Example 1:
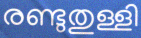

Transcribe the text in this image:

രണ്ടുതുള്ളി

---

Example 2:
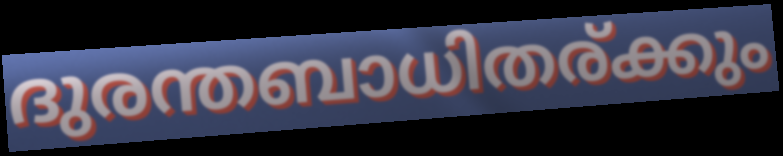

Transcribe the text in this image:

ദുരന്തബാധിതര്ക്കും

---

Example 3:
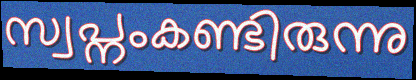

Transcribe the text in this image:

സ്വപ്നംകണ്ടിരുന്നു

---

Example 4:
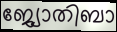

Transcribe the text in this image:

ജ്യോതിബാ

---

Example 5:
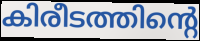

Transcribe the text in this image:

കിരീടത്തിന്റെ